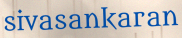
sivasankaran